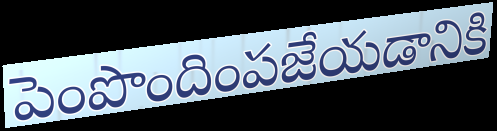
పెంపొందింపజేయడానికి